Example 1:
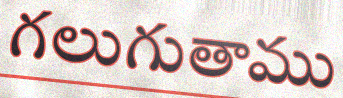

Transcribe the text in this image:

గలుగుతాము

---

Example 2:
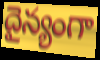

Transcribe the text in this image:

దైన్యంగా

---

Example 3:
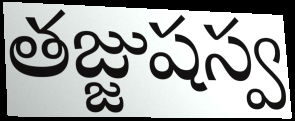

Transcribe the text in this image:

తజ్జుషస్వ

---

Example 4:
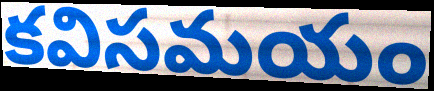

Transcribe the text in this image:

కవిసమయం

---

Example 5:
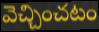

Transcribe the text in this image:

వెచ్చించటం